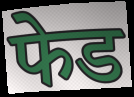
फेड